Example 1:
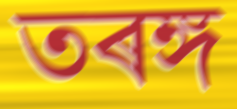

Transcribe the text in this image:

তৰঙ্গ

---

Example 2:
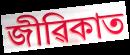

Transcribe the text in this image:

জীৱিকাত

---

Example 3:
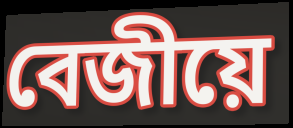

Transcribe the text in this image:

বেজীয়ে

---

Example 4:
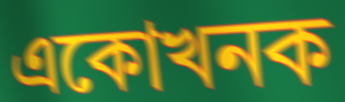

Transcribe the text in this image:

একোখনক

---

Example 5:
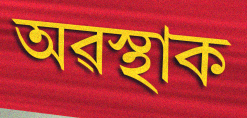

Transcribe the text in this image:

অৱস্থাক